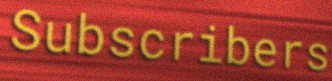
Subscribers